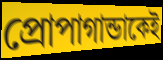
প্রোপাগান্ডাকেই